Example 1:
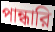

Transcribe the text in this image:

পান্ধারি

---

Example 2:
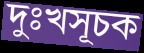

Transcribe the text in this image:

দুঃখসূচক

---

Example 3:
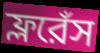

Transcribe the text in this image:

ফ্লরেঁস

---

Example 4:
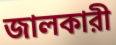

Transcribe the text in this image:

জালকারী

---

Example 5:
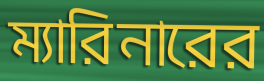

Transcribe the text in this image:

ম্যারিনারের